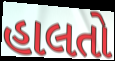
હાલતો